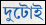
দুটোই